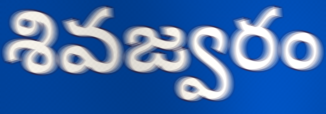
శివజ్వరం